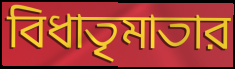
বিধাতৃমাতার